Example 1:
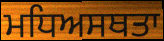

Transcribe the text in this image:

ਮਧਿਅਸਥਤਾ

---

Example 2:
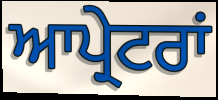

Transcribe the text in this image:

ਆਪ੍ਰੇਟਰਾਂ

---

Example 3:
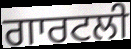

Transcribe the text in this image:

ਗਾਰਟਲੀ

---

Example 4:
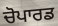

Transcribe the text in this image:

ਚੋਪਾਰਡ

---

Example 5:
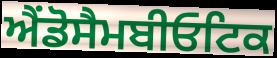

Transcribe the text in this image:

ਐਂਡੋਸੈਮਬੀਓਟਿਕ